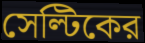
সেল্টিকের